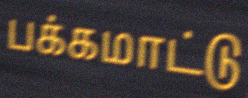
பக்கமாட்டு